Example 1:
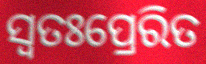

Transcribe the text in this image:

ସ୍ୱତଃପ୍ରେରିତ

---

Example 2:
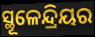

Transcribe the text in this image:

ସ୍ଥୂଳେନ୍ଦ୍ରିୟର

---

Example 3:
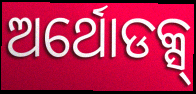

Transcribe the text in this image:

ଅର୍ଥୋଡକ୍ସ୍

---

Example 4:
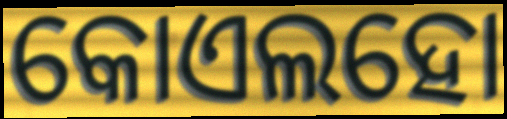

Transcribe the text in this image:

କୋଏଲହୋ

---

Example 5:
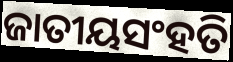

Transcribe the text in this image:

ଜାତୀୟସଂହତି